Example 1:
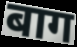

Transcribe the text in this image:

बाग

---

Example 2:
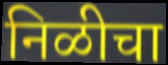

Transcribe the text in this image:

निळीचा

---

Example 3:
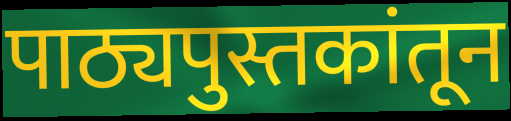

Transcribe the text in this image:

पाठ्यपुस्तकांतून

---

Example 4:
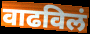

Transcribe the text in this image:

वाढविलं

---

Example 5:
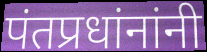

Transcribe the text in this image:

पंतप्रधांनांनी